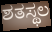
ಶತಸ್ಥಲ